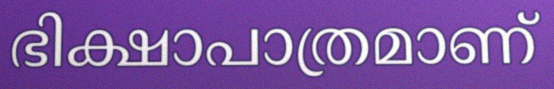
ഭിക്ഷാപാത്രമാണ്